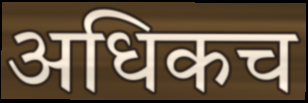
अधिकच